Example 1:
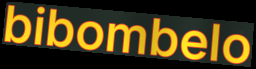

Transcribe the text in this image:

bibombelo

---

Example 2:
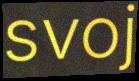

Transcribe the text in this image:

svoj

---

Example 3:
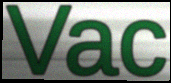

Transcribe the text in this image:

Vac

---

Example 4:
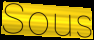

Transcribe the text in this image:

Sous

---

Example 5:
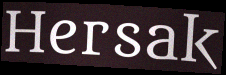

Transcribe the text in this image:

Hersak